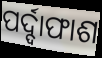
ପର୍ଦ୍ଦାଫାଶ